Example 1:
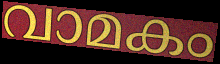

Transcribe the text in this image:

വാമകം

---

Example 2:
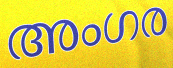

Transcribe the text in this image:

അംഗര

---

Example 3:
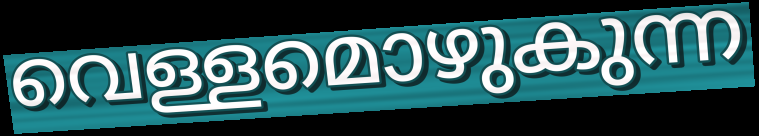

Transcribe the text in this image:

വെള്ളമൊഴുകുന്ന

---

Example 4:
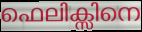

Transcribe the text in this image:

ഫെലിക്സിനെ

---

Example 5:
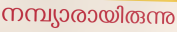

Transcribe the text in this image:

നമ്പ്യാരായിരുന്നു